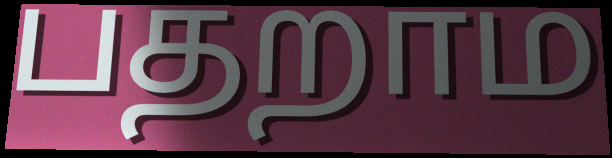
பதறாம